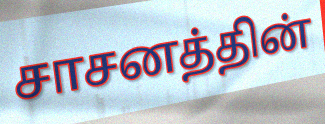
சாசனத்தின்